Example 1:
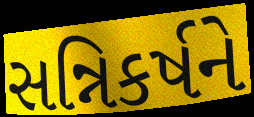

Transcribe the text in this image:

સન્નિકર્ષને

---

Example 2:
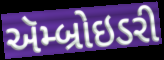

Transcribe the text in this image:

ઍમ્બ્રોઇડરી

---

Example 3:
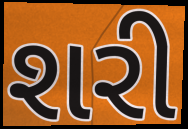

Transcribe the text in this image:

શરી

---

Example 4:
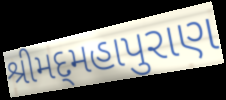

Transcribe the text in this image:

શ્રીમદ્‌મહાપુરાણ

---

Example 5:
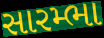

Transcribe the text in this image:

સારમ્ભા